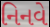
નિનવે